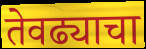
तेवढ्याचा